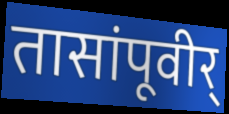
तासांपूवीर्